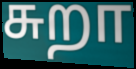
சுறா